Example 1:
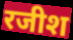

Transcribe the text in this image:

रजीश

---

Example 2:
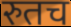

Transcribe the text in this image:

रुतच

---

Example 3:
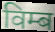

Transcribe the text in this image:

विम्ब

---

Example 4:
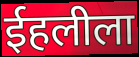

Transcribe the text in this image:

ईहलीला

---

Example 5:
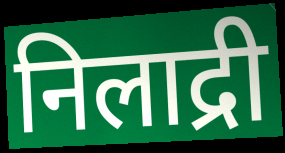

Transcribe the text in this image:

निलाद्री